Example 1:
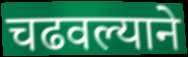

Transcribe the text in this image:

चढवल्याने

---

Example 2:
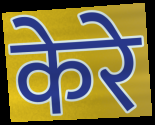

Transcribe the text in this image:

केरे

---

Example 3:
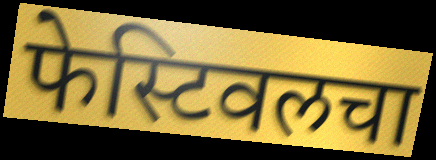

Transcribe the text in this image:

फेस्टिवलचा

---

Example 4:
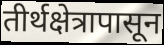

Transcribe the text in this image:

तीर्थक्षेत्रापासून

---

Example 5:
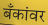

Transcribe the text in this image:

बँकांवर